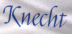
Knecht